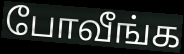
போவீங்க